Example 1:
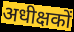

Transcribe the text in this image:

अधीक्षकों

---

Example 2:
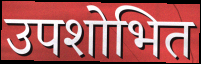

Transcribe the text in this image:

उपशोभित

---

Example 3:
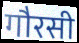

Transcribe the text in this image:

गौरसी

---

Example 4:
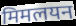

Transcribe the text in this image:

मिमलयन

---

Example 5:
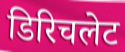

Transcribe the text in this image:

डिरिचलेट